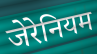
जेरेनियम